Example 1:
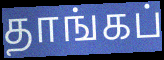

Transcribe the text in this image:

தாங்கப்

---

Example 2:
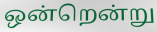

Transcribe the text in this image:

ஒன்றென்று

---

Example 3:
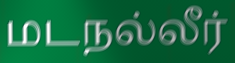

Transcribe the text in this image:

மடநல்லீர்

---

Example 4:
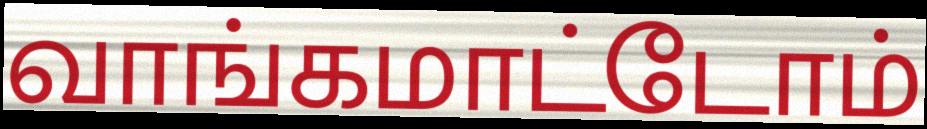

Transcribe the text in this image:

வாங்கமாட்டோம்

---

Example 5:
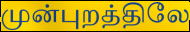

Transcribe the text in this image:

முன்புறத்திலே